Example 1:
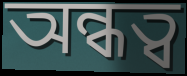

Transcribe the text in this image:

অন্ধত্ব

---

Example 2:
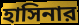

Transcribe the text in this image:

হাসিনার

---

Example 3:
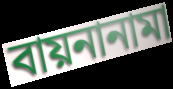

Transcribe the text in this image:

বায়নানামা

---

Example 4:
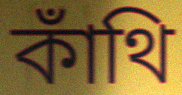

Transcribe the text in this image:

কাঁথি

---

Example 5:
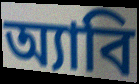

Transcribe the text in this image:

অ্যাবি